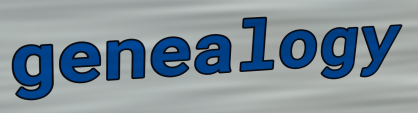
genealogy